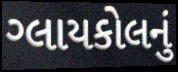
ગ્લાયકોલનું